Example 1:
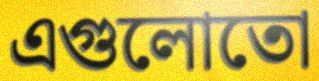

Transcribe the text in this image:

এগুলোতো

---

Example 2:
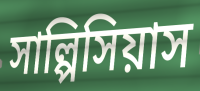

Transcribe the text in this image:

সাল্পিসিয়াস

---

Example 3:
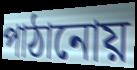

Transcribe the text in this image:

পাঠানোয়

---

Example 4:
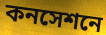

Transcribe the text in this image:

কনসেশনে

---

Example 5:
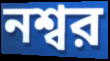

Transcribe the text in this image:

নশ্বর